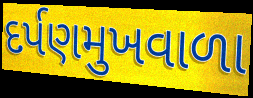
દર્પણમુખવાળા